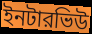
ইনটারভিউ